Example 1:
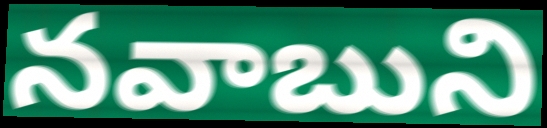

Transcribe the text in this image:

నవాబుని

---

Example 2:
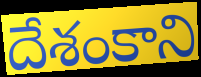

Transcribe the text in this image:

దేశంకాని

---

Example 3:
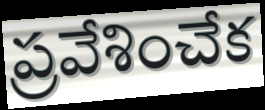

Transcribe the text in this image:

ప్రవేశించేక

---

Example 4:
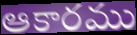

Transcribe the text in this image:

ఆకారము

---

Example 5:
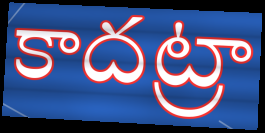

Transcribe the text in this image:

కాదట్రా